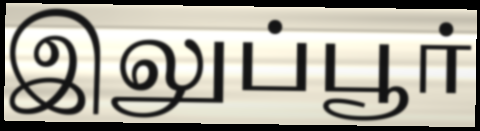
இலுப்பூர்